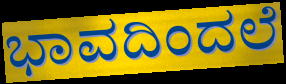
ಭಾವದಿಂದಲೆ